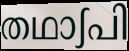
തഥാഽപി